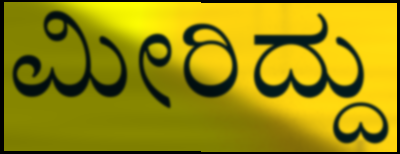
ಮೀರಿದ್ದು